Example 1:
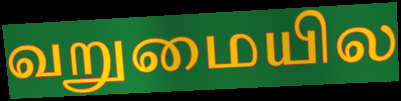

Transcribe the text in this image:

வறுமையில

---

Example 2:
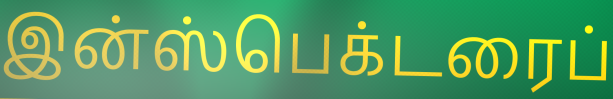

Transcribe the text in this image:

இன்ஸ்பெக்டரைப்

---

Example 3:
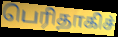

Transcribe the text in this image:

பெரிதாகிச்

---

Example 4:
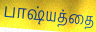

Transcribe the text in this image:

பாஷ்யத்தை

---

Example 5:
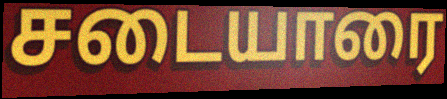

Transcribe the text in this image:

சடையாரை